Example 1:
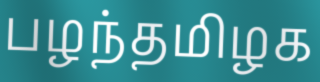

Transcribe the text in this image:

பழந்தமிழக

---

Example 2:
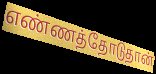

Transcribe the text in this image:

எண்ணத்தோடுதான்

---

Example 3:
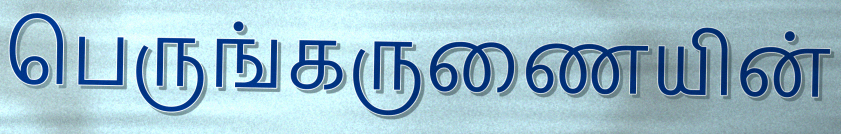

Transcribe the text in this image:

பெருங்கருணையின்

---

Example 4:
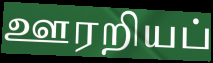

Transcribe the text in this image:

ஊரறியப்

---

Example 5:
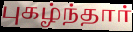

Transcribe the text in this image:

புகழ்ந்தார்